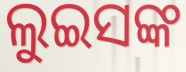
ଲୁଇସଙ୍କ